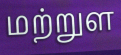
மற்றுள